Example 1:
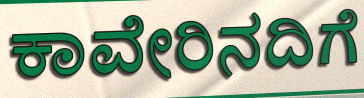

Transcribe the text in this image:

ಕಾವೇರಿನದಿಗೆ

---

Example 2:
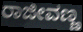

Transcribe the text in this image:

ರಾಜೀವಣ್ಣ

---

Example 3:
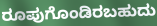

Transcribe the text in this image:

ರೂಪುಗೊಂಡಿರಬಹುದು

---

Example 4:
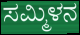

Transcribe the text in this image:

ಸಮ್ಮಿಳನ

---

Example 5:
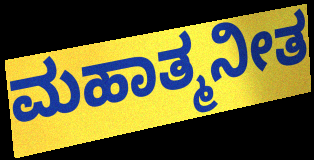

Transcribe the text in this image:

ಮಹಾತ್ಮನೀತ